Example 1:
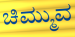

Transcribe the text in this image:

ಚಿಮ್ಮುವ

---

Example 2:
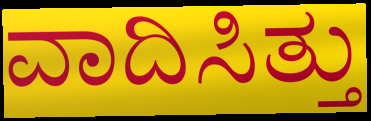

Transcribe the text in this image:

ವಾದಿಸಿತ್ತು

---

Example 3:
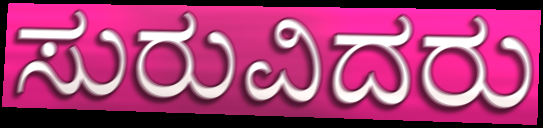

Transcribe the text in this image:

ಸುರುವಿದರು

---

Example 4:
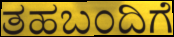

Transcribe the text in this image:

ತಹಬಂದಿಗೆ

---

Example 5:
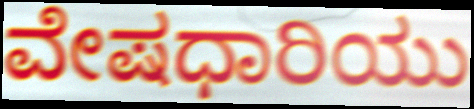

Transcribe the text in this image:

ವೇಷಧಾರಿಯು